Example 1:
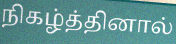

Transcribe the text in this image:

நிகழ்த்தினால்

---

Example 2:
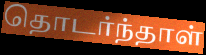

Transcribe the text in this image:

தொடர்ந்தாள்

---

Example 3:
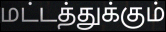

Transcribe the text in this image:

மட்டத்துக்கும்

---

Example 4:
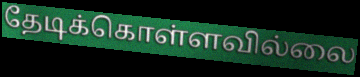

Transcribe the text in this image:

தேடிக்கொள்ளவில்லை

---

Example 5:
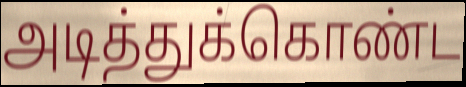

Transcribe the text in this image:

அடித்துக்கொண்ட